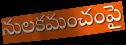
నులకమంచంపై